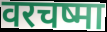
वरचष्मा